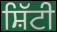
ਸ਼ਿੱਟੀ